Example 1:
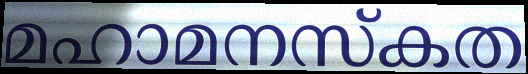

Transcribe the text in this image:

മഹാമനസ്കത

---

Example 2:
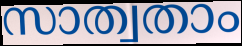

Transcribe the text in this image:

സാത്വതാം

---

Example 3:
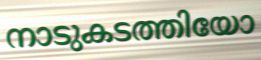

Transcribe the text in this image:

നാടുകടത്തിയോ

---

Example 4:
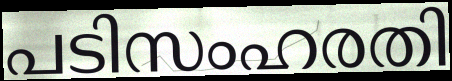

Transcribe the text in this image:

പടിസംഹരതി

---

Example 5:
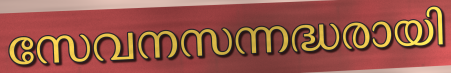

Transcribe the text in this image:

സേവനസന്നദ്ധരായി